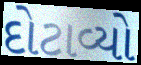
દોટાવ્યો